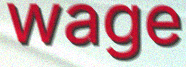
wage